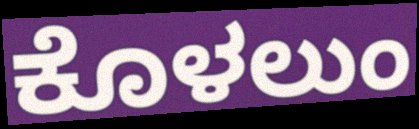
ಕೊಳಲುಂ